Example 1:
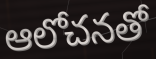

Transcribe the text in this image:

ఆలోచనతో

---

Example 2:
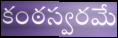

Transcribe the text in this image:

కంఠస్వరమే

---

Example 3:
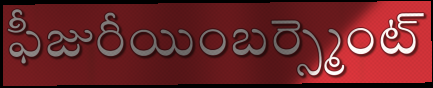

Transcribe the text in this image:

ఫీజురీయింబర్స్మెంట్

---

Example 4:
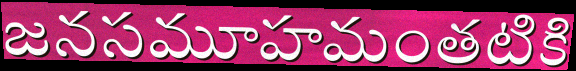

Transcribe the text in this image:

జనసమూహమంతటికి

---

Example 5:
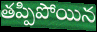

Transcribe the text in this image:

తప్పిపోయిన